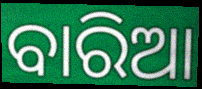
ବାରିଆ